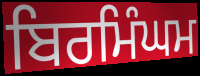
ਬਿਰਮਿੰਘਮ